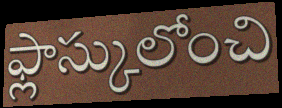
ఫ్లాస్కులోంచి